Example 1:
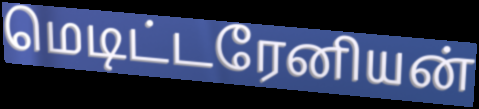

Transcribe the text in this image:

மெடிட்டரேனியன்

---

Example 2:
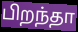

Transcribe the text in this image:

பிறந்தா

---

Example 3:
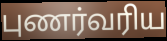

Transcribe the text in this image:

புணர்வரிய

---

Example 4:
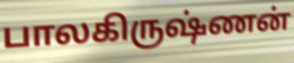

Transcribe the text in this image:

பாலகிருஷ்ணன்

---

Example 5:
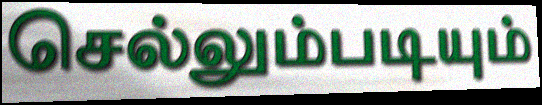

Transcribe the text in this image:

செல்லும்படியும்